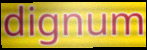
dignum